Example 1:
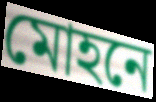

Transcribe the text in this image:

মোহনে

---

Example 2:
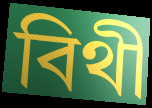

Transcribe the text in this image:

বিথী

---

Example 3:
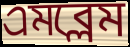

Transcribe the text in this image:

এমব্লেম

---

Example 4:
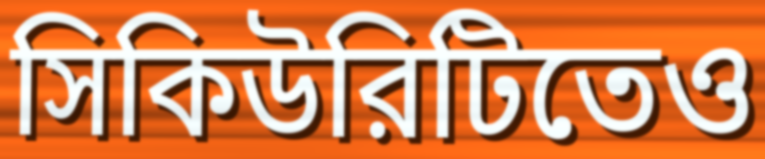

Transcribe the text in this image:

সিকিউরিটিতেও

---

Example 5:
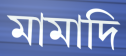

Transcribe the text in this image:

মামাদি